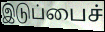
இடுப்பைச்